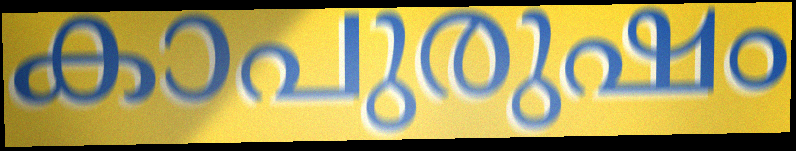
കാപുരുഷം